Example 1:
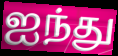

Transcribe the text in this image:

ஐந்து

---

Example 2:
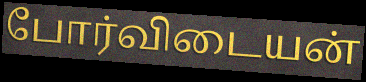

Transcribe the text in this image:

போர்விடையன்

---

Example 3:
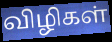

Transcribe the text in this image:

விழிகள்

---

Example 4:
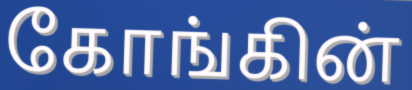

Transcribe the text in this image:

கோங்கின்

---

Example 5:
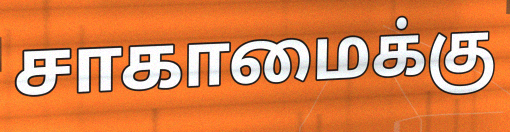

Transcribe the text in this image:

சாகாமைக்கு